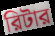
রিটার